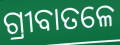
ଗ୍ରୀବାତଳେ